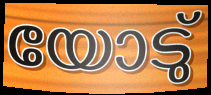
യോടു്